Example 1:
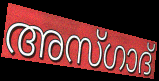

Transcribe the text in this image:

അസ്ഗാദ്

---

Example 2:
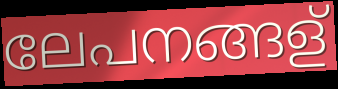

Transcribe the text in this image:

ലേപനങ്ങള്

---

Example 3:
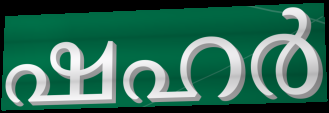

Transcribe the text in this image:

ഷഹർ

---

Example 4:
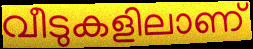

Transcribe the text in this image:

വീടുകളിലാണ്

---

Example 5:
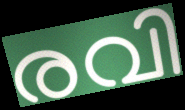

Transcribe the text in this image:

രവി